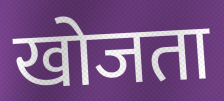
खोजता